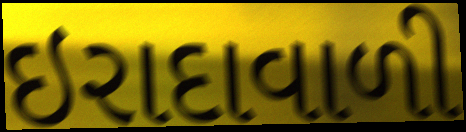
ઇરાદાવાળી